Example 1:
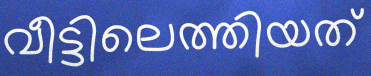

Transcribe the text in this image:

വീട്ടിലെത്തിയത്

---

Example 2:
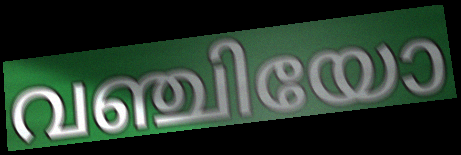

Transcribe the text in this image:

വഞ്ചിയോ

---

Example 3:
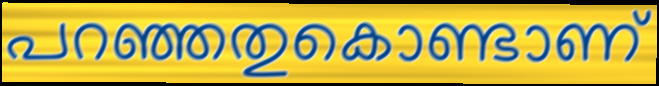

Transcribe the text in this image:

പറഞ്ഞതുകൊണ്ടാണ്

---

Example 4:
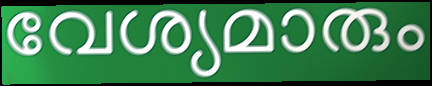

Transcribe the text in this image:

വേശ്യമാരും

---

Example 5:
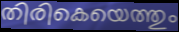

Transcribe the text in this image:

തിരികെയെത്തും